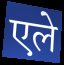
एले